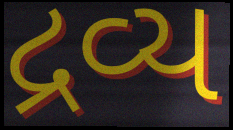
દ્રવ્ય